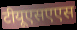
टीयूएसएएस